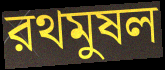
রথমুষল